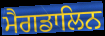
ਮੈਗਡਾਲਿਨ